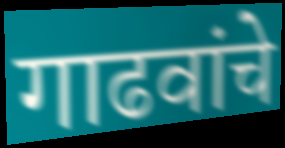
गाढवांचे